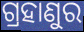
ଗ୍ରହାଣୁର